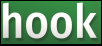
hook